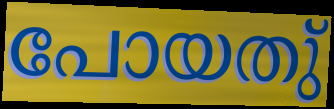
പോയതു്